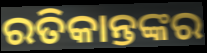
ରତିକାନ୍ତଙ୍କର